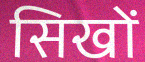
सिखों